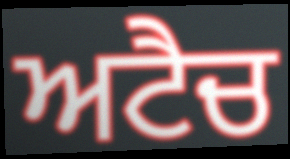
ਅਟੈਚ